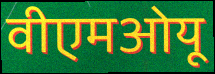
वीएमओयू